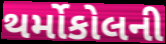
થર્મોકોલની